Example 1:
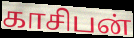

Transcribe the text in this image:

காசிபன்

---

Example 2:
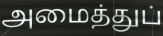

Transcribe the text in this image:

அமைத்துப்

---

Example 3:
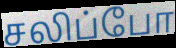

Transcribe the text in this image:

சலிப்போ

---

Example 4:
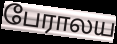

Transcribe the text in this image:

பேராலய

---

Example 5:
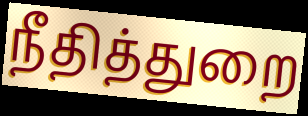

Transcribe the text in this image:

நீதித்துறை